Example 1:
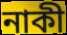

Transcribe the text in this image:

নাকী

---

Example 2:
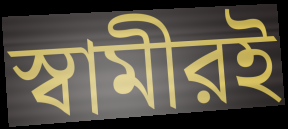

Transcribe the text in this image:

স্বামীরই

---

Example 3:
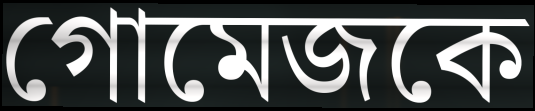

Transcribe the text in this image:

গোমেজকে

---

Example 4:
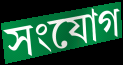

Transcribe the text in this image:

সংযোগ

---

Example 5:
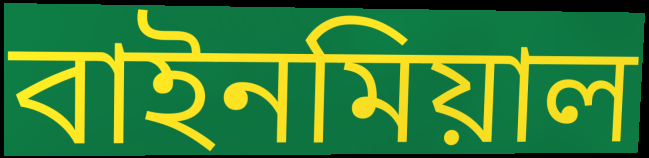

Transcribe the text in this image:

বাইনমিয়াল